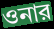
ওনার